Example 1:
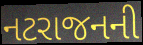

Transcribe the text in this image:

નટરાજનની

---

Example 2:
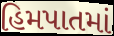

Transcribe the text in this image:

હિમપાતમાં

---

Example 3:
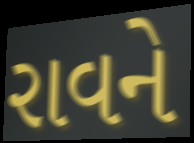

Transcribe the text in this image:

રાવને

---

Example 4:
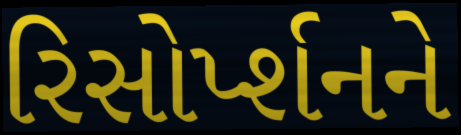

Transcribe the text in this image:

રિસોર્પ્શનને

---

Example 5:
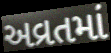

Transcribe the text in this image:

અવ્રતમાં